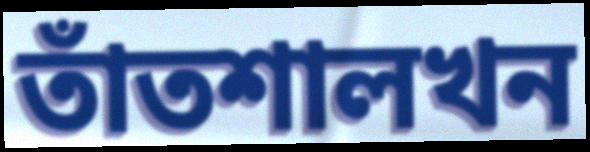
তাঁতশালখন